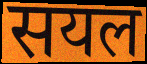
सयल